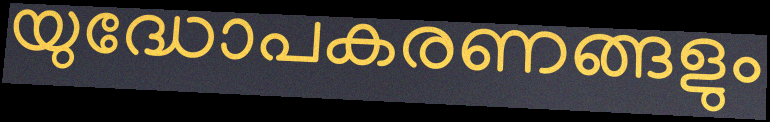
യുദ്ധോപകരണങ്ങളും